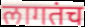
लागतंच